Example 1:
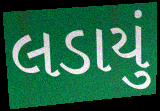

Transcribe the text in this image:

લડાયું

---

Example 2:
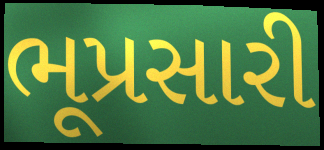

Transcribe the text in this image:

ભૂપ્રસારી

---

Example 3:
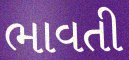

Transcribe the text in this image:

ભાવતી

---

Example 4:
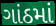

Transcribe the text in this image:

ગાંઠમાં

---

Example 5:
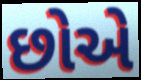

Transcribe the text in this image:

છોએ